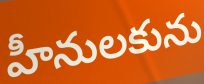
హీనులకును